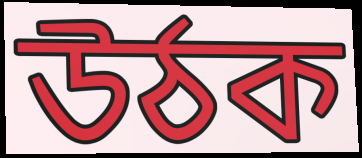
উঠক